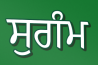
ਸੁਗੰਮ